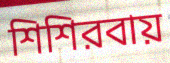
শিশিরবায়